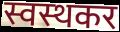
स्वस्थकर